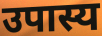
उपास्य